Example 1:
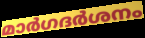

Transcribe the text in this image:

മാർഗദർശനം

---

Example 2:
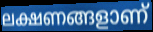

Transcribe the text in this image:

ലക്ഷണങ്ങളാണ്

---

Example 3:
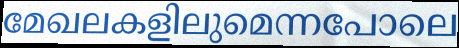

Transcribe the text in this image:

മേഖലകളിലുമെന്നപോലെ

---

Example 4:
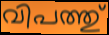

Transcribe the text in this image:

വിപത്തു്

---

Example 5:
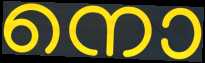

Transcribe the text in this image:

നൊ